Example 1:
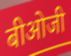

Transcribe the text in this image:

बीओजी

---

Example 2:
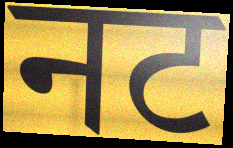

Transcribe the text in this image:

नट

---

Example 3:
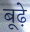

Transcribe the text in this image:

बूढ़े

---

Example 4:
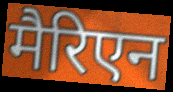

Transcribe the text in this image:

मैरिएन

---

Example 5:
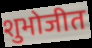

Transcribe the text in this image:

शुभोजीत